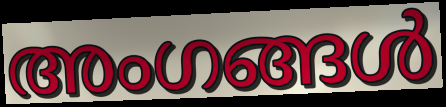
അംഗങ്ങൾ